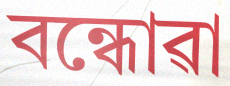
বন্ধোৱা